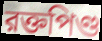
রক্তপিণ্ড